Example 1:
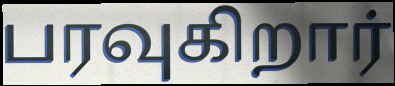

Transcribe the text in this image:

பரவுகிறார்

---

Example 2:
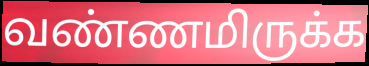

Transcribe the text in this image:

வண்ணமிருக்க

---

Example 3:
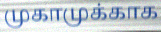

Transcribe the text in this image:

முகாமுக்காக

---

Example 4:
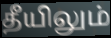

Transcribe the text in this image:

தீயிலும்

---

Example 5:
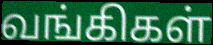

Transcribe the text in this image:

வங்கிகள்